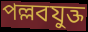
পল্লবযুক্ত